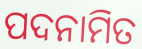
ପଦନାମିତ